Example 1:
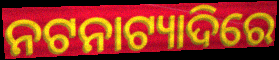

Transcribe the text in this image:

ନଟନାଟ୍ୟାଦିରେ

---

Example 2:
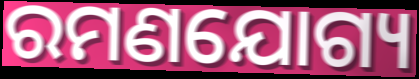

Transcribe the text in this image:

ରମଣଯୋଗ୍ୟ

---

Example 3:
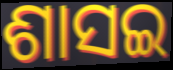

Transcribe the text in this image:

ଶାସଇ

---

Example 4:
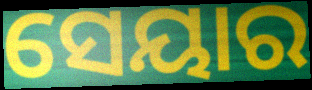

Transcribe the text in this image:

ସେୟାର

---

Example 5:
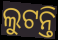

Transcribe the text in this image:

ଲୁଟନ୍ତି